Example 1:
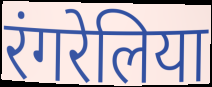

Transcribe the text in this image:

रंगरेलिया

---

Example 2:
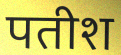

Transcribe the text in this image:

पतीश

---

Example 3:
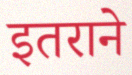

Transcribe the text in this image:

इतराने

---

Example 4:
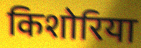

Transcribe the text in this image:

किशोरिया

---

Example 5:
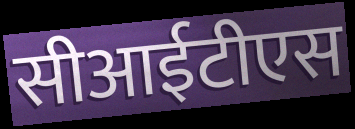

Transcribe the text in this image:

सीआईटीएस